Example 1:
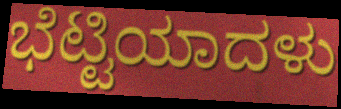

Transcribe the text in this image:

ಭೆಟ್ಟಿಯಾದಳು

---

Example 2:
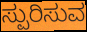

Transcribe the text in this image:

ಸ್ಪುರಿಸುವ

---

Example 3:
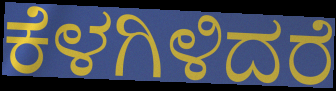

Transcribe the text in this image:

ಕೆಳಗಿಳಿದರೆ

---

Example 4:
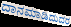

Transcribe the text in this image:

ದಾನಮಾಡಿದುದರ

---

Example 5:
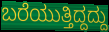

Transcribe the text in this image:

ಬರೆಯುತ್ತಿದ್ದದ್ದು